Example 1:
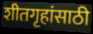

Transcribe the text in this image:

शीतगृहांसाठी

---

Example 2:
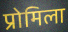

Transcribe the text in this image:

प्रोमिला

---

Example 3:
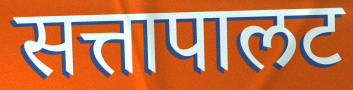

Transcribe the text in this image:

सत्तापालट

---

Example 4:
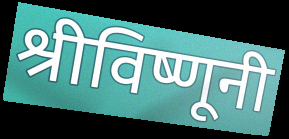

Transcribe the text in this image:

श्रीविष्णूनी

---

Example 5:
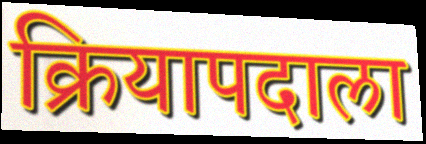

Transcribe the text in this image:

क्रियापदाला